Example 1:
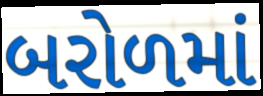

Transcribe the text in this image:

બરોળમાં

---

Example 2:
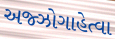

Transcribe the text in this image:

અજ્ઝોગાહેત્વા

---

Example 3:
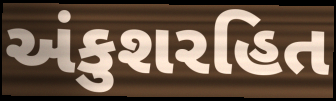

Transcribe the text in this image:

અંકુશરહિત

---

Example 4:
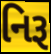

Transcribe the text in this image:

નિરૂ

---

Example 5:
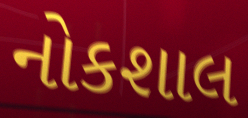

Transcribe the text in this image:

નોકશાલ